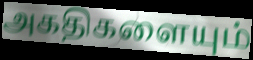
அகதிகளையும்